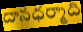
దానధర్మాది